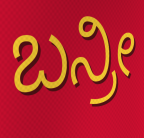
ಬನ್ರೀ